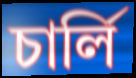
চাৰ্লি